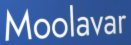
Moolavar